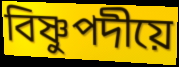
বিষ্ণুপদীয়ে